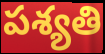
పశ్యతి